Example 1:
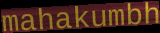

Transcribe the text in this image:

mahakumbh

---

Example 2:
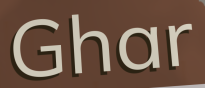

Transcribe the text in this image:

Ghar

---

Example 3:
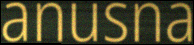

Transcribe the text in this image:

anusna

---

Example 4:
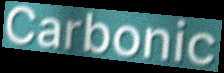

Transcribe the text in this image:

Carbonic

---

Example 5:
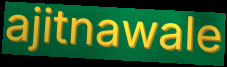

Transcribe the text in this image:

ajitnawale